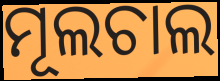
ମୂଲଚାଲ